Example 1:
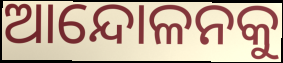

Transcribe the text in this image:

ଆନ୍ଦୋଳନକୁ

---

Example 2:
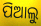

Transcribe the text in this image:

ପିଆଲୁ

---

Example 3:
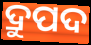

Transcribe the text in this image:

ଦ୍ରୁପଦ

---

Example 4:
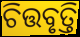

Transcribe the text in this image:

ଚିତ୍ତବୃତ୍ତି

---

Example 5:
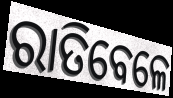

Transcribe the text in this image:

ରାତିବେଳେ